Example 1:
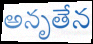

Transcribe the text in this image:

అనృతేన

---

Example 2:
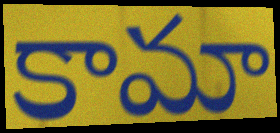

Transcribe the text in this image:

కామా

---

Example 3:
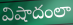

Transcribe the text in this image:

విషాదంలా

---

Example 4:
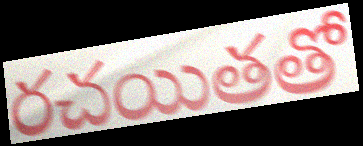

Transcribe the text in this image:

రచయితతో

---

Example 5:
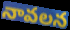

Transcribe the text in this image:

నావలన